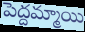
పెద్దమ్మాయి